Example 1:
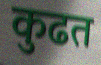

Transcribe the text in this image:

कुढत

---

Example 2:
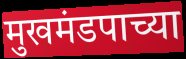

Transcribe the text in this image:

मुखमंडपाच्या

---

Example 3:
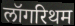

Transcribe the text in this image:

लॉगरिथम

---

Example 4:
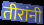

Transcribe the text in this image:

तीरांनी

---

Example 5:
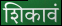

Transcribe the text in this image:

शिकावं